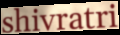
shivratri